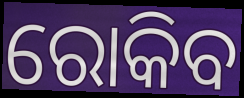
ରୋକିବ